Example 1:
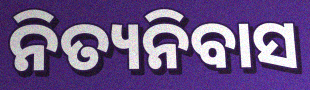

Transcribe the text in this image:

ନିତ୍ୟନିବାସ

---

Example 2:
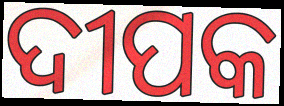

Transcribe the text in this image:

ଦୀପକ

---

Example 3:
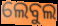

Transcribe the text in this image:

ଲେବୁଲ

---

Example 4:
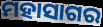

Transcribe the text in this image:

ମହାସାଗର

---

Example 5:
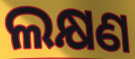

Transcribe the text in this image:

ଲକ୍ଷଣ